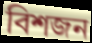
বিশজন